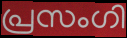
പ്രസംഗി